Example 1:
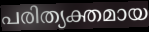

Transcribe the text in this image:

പരിത്യക്തമായ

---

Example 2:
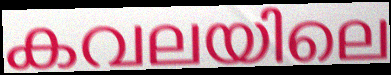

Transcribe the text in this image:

കവലയിലെ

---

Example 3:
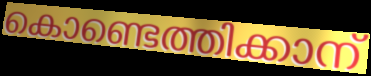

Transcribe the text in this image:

കൊണ്ടെത്തിക്കാന്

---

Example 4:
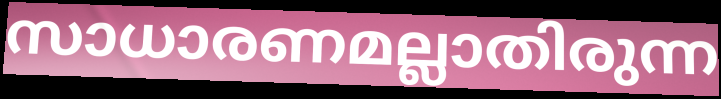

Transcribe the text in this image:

സാധാരണമല്ലാതിരുന്ന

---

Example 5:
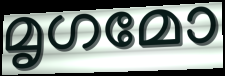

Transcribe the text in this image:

മൃഗമോ